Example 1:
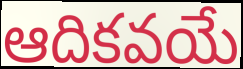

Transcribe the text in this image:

ఆదికవయే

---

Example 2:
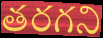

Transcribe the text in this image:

తరగని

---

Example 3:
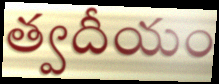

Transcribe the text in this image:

త్వదీయం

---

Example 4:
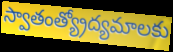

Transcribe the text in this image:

స్వాతంత్య్రోద్యమాలకు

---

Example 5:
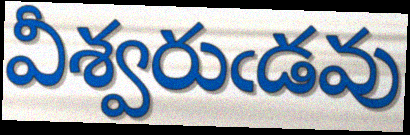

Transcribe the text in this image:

వీశ్వరుఁడవు